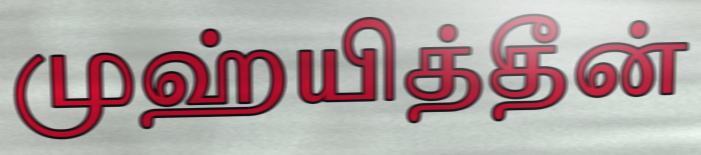
முஹ்யித்தீன்